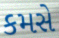
કમસે